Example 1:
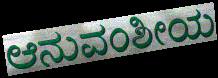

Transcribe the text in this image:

ಆನುವಂಶೀಯ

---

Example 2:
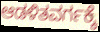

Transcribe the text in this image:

ಆಡಳಿತವರ್ಗಕ್ಕೆ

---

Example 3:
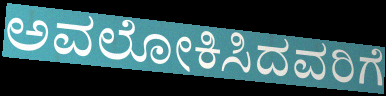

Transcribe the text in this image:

ಅವಲೋಕಿಸಿದವರಿಗೆ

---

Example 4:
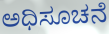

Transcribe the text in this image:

ಅಧಿಸೂಚನೆ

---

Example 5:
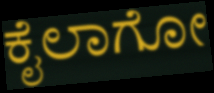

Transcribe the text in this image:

ಕೈಲಾಗೋ